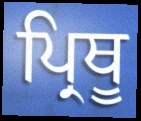
ਪ੍ਰਿਥੂ